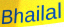
Bhailal